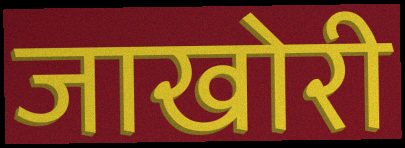
जाखोरी